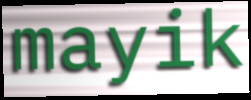
mayik